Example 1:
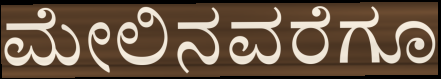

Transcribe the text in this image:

ಮೇಲಿನವರೆಗೂ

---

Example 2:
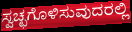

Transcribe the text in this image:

ಸ್ವಚ್ಛಗೊಳಿಸುವುದರಲ್ಲಿ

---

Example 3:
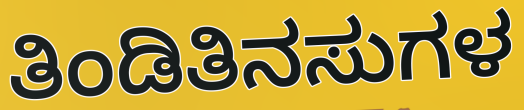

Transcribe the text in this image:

ತಿಂಡಿತಿನಸುಗಳ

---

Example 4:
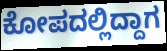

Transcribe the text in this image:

ಕೋಪದಲ್ಲಿದ್ದಾಗ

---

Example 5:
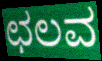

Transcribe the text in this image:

ಛಲವ